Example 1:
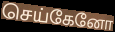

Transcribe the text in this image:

செய்கேனோ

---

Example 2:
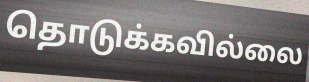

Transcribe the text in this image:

தொடுக்கவில்லை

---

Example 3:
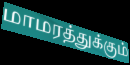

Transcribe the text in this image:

மாமரத்துக்கும்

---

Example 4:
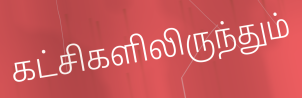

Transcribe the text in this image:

கட்சிகளிலிருந்தும்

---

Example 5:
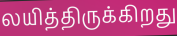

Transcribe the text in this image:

லயித்திருக்கிறது